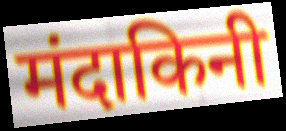
मंदाकिनी